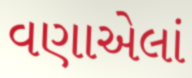
વણાએલાં